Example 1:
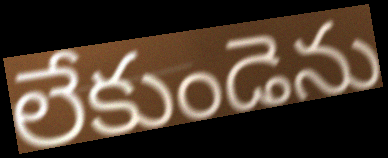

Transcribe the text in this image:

లేకుండెను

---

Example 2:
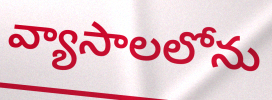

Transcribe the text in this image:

వ్యాసాలలోను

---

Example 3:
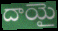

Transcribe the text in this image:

దాయై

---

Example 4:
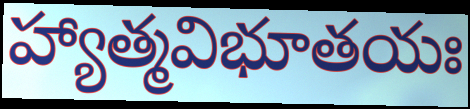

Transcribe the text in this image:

హ్యాత్మవిభూతయః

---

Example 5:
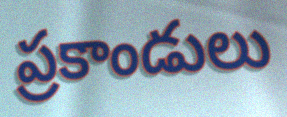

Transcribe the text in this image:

ప్రకాండులు